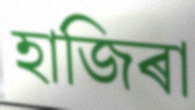
হাজিৰা